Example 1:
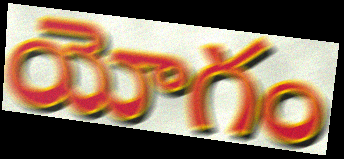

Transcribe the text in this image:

యోగం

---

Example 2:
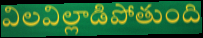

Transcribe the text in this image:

విలవిల్లాడిపోతుంది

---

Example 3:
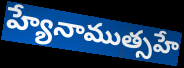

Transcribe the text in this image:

హ్యేనాముత్సహే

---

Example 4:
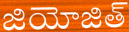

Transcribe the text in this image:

జియోజిత్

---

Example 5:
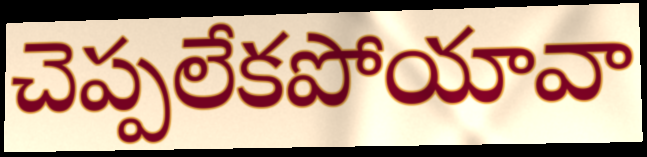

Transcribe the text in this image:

చెప్పలేకపోయావా